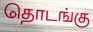
தொடங்கு